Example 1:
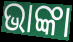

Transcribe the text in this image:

ଭାଙ୍କା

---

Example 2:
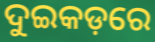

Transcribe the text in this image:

ଦୁଇକଡ଼ରେ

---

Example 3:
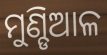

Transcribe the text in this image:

ମୁଣ୍ଡିଆଳ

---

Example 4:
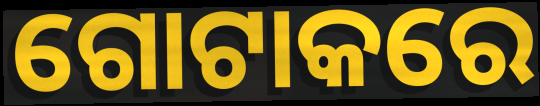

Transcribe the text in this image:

ଗୋଟାକରେ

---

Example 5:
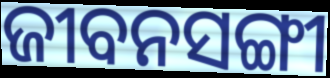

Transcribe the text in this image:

ଜୀବନସଙ୍ଗୀ